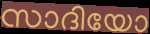
സാദിയോ